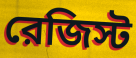
রেজিস্ট